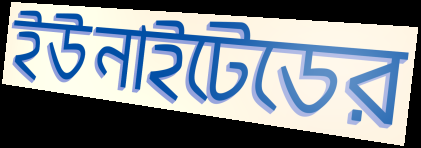
ইউনাইটেডের